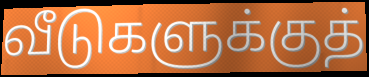
வீடுகளுக்குத்